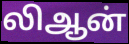
லிஆன்